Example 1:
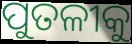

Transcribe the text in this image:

ପୁତଳୀକୁ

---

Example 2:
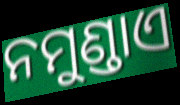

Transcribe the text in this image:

ନମୁଣ୍ଡାଏ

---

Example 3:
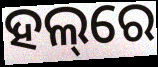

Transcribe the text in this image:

ହଲ୍‌ରେ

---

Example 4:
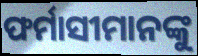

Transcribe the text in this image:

ଫର୍ମାସୀମାନଙ୍କୁ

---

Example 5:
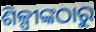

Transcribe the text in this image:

ଶିଳ୍ପୀଙ୍କଠାରୁ